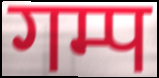
गम्प